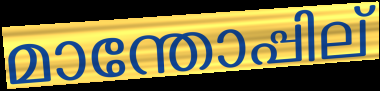
മാന്തോപ്പില്